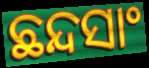
ଛନ୍ଦସାଂ